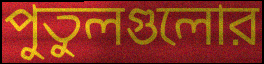
পুতুলগুলোর